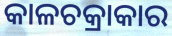
କାଳଚକ୍ରାକାର